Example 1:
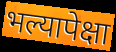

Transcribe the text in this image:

भल्यापेक्षा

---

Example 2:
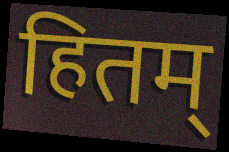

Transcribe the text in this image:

हितम्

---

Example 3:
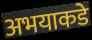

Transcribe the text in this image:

अभयाकडे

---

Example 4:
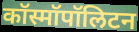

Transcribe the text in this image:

कॉस्मॉपॉलिटन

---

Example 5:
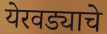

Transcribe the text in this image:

येरवड्याचे